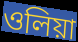
ওলিয়া